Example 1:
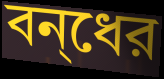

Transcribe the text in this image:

বন্‌ধের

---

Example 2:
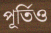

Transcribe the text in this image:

পূর্তিও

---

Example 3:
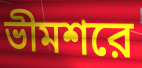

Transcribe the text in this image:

ভীমশরে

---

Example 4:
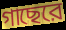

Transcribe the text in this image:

গাছেরে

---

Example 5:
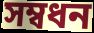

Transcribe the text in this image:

সম্বধন